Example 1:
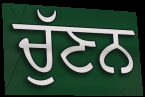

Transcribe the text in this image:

ਚੁੱਣਨ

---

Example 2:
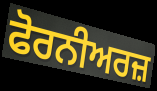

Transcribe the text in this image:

ਫੋਰਨੀਅਰਜ਼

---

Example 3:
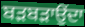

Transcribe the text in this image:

ਬੜਬੜਾਉਂਦਾ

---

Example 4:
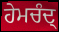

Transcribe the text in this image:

ਹੇਮਚੰਦ੍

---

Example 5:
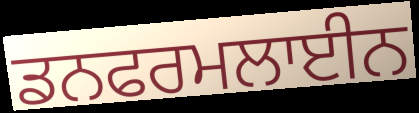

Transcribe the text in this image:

ਡਨਫਰਮਲਾਈਨ